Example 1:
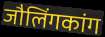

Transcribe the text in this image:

जौलिंगकांग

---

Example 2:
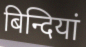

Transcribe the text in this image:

बिन्दियां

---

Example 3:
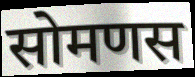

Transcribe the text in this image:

सोमणस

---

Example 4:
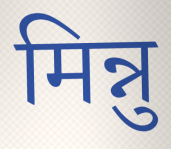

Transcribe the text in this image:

मिन्नु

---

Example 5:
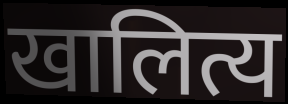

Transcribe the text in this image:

खालित्य